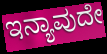
ಇನ್ಯಾವುದೇ